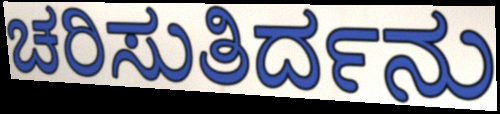
ಚರಿಸುತಿರ್ದನು